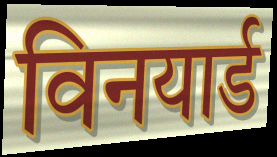
विनयार्ड